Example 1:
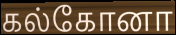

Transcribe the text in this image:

கல்கோனா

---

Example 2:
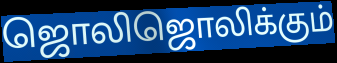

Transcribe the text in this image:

ஜொலிஜொலிக்கும்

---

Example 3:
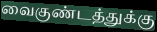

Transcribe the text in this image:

வைகுண்டத்துக்கு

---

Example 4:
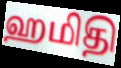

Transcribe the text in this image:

ஹமிதி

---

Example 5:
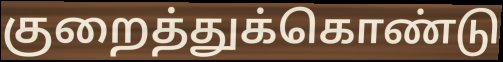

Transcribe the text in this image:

குறைத்துக்கொண்டு